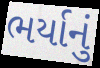
ભર્યાનું